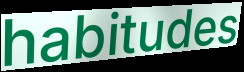
habitudes